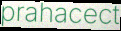
prahacect